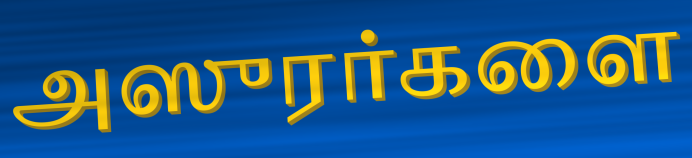
அஸுரர்களை